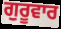
ਗੁਰੂਵਾਰ